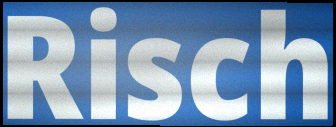
Risch